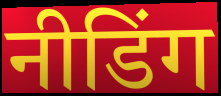
नीडिंग